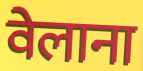
वेलाना